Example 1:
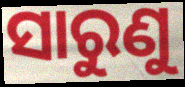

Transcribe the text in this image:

ସାରୁଣୁ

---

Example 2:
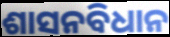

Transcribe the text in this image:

ଶାସନବିଧାନ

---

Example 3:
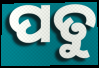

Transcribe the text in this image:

ପତୁ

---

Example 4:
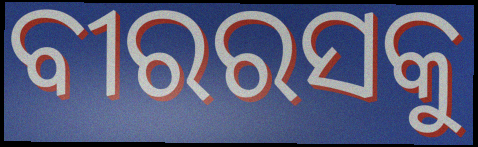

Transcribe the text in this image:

ବୀରରସକୁ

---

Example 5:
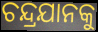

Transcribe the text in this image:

ଚନ୍ଦ୍ରଯାନକୁ